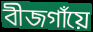
বীজগাঁয়ে